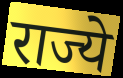
राज्ये